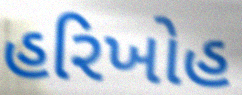
હરિખોહ